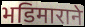
भडिमाराने